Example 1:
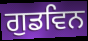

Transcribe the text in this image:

ਗੁਡਵਿਨ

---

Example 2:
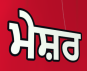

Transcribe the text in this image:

ਮੇਸ਼ਰ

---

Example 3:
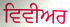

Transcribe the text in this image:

ਵਿਵੀਅਰ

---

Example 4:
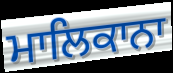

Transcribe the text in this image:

ਮਾਲਿਕਾਨਾ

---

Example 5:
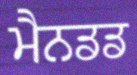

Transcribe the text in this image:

ਮੈਨਡਡ